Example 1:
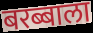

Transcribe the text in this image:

बरब्बाला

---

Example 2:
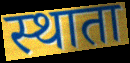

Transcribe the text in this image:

स्थाता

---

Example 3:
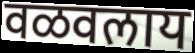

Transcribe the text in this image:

वळवलाय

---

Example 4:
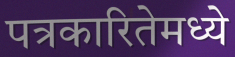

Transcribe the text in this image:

पत्रकारितेमध्ये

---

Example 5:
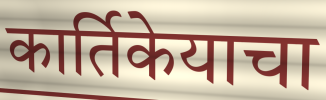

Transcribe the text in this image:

कार्तिकेयाचा